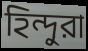
হিন্দুরা